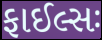
ફાઈલ્સઃ